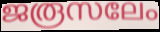
ജരൂസലേം